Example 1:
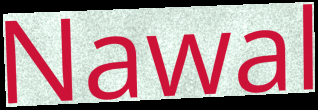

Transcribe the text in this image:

Nawal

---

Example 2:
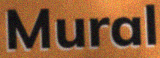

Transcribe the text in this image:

Mural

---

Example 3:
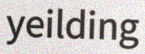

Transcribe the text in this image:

yeilding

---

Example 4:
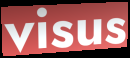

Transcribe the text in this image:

visus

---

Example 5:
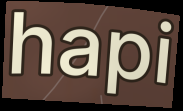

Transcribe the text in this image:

hapi